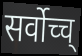
सर्वोच्च्